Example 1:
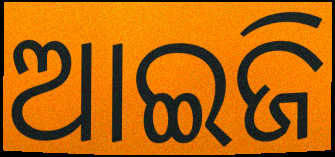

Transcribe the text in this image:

ଆଇଜି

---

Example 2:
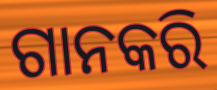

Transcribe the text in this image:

ଗାନକରି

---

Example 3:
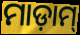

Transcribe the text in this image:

ମାଡ଼ାମ୍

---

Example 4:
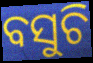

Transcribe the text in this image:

ବସୁଚି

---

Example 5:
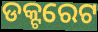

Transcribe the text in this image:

ଡକ୍ଟରେଟ